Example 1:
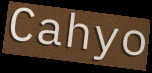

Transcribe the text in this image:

Cahyo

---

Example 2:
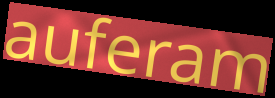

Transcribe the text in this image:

auferam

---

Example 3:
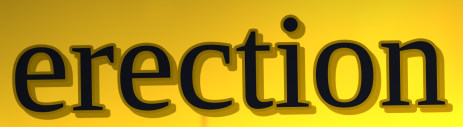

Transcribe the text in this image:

erection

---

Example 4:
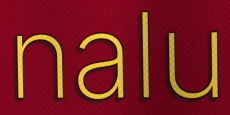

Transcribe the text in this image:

nalu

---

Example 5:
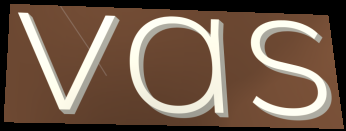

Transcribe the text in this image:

vas